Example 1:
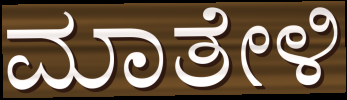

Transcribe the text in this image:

ಮಾತೇಳಿ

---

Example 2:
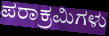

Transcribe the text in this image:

ಪರಾಕ್ರಮಿಗಳು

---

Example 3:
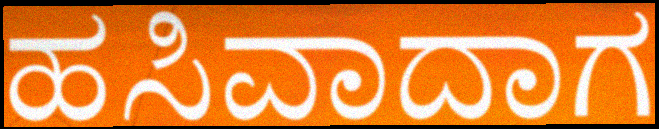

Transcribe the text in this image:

ಹಸಿವಾದಾಗ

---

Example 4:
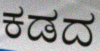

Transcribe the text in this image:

ಕಡದ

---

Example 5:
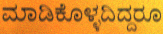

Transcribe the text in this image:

ಮಾಡಿಕೊಳ್ಳದಿದ್ದರೂ